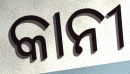
କାନୀ